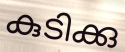
കുടിക്കു